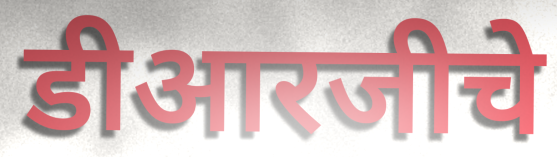
डीआरजीचे